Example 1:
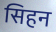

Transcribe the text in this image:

सिहन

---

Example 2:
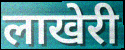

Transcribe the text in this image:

लाखेरी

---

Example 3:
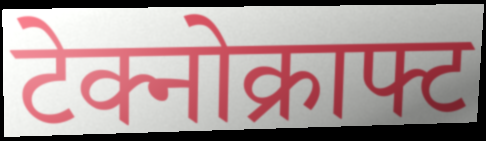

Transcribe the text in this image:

टेक्नोक्राफ्ट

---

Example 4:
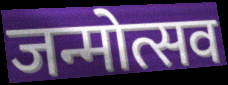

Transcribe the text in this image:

जन्मोत्सव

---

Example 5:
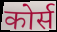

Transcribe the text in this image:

कोर्स